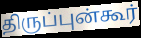
திருப்புன்கூர்